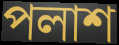
পলাশ